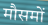
मौसमों